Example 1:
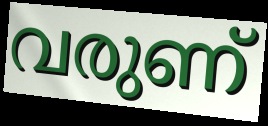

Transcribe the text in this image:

വരുണ്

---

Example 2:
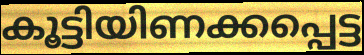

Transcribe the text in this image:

കൂട്ടിയിണക്കപ്പെട്ട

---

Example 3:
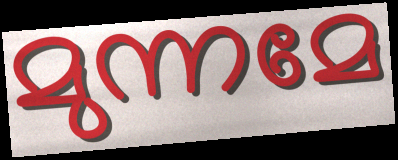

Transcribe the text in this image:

മുന്നമേ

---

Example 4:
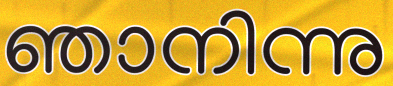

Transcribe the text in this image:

ഞാനിന്നു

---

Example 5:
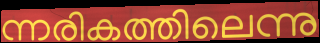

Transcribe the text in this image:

ന്നരികത്തിലെന്നു